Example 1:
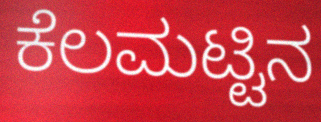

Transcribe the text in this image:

ಕೆಲಮಟ್ಟಿನ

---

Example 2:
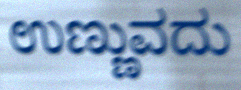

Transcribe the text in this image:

ಉಣ್ಣುವದು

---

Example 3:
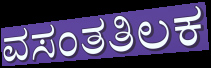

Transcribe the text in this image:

ವಸಂತತಿಲಕ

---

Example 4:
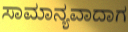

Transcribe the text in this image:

ಸಾಮಾನ್ಯವಾದಾಗ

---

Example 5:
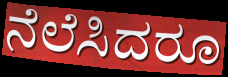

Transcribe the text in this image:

ನೆಲೆಸಿದರೂ